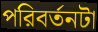
পরিবর্তনটা